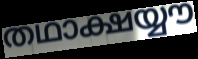
തഥാക്ഷയ്യൗ